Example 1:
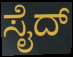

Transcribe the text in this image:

ಸೈದ್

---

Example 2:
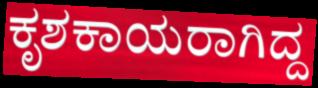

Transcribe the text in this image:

ಕೃಶಕಾಯರಾಗಿದ್ದ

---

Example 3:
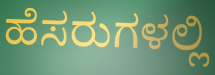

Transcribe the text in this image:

ಹೆಸರುಗಳಲ್ಲಿ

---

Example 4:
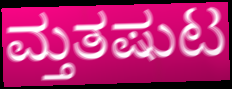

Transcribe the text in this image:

ಮ್ತತಷುಟ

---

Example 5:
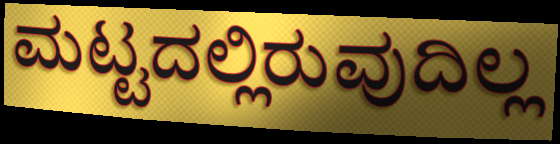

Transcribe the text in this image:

ಮಟ್ಟದಲ್ಲಿರುವುದಿಲ್ಲ